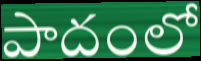
పాదంలో